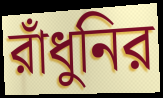
রাঁধুনির